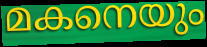
മകനെയും